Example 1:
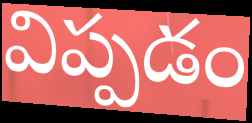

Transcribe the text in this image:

విప్పడం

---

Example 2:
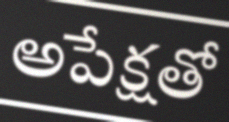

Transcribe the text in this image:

అపేక్షతో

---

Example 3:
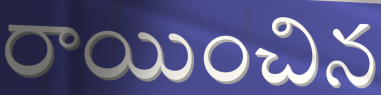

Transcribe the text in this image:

రాయించిన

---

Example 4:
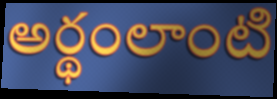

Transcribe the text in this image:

అర్థంలాంటి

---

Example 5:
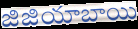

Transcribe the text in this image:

జిజియాబాయి